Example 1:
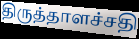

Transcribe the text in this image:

திருத்தாளச்சதி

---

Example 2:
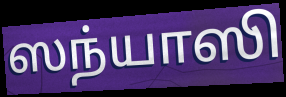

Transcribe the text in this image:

ஸந்யாஸி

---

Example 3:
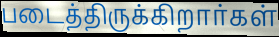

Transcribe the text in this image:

படைத்திருக்கிறார்கள்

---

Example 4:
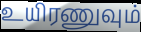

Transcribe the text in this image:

உயிரணுவும்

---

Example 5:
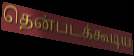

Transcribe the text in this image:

தென்படக்கூடிய